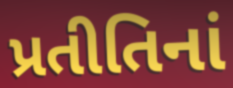
પ્રતીતિનાં